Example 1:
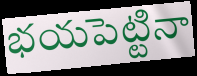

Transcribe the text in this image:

భయపెట్టినా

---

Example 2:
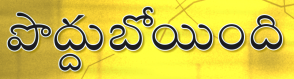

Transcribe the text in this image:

పొద్దుబోయింది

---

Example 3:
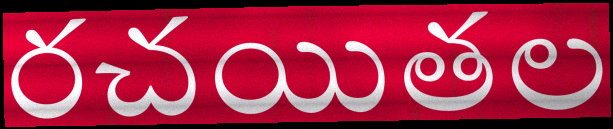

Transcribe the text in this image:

రచయితల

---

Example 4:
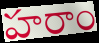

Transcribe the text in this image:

హరాం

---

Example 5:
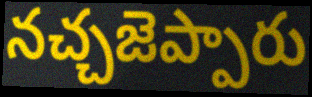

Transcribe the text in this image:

నచ్చజెప్పారు